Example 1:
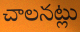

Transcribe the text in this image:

చాలనట్లు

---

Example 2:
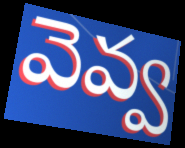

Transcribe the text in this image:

వెవ్వ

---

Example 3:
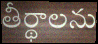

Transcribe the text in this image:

తీర్థాలను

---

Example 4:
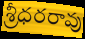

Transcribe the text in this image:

శ్రీధరరావు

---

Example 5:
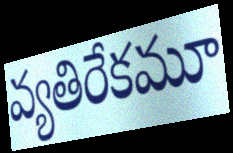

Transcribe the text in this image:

వ్యతిరేకమూ